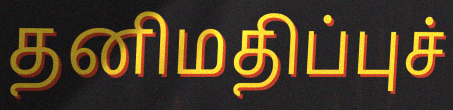
தனிமதிப்புச்